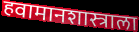
हवामानशास्त्राला